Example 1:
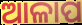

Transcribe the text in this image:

ଆଳାପ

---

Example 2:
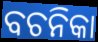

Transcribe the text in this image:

ବଚନିକା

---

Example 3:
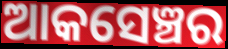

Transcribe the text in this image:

ଆକସେଞ୍ଚର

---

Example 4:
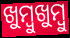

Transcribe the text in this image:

ଖୁମ୍ୱୁଖୁମ୍ବୁ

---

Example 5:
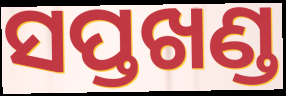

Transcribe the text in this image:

ସପ୍ତଖଣ୍ଡ